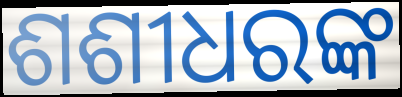
ଶଶୀଧରଙ୍କ